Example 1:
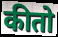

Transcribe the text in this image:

कीतो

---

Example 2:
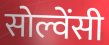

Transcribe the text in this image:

सोल्वेंसी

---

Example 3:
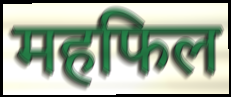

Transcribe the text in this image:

महफिल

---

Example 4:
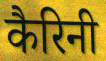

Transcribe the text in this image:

कैरिनी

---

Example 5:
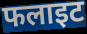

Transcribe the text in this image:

फलाइट